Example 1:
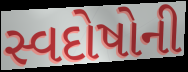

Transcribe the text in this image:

સ્વદોષોની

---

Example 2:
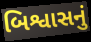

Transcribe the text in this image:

બિશ્વાસનું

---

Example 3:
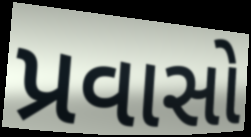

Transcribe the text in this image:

પ્રવાસો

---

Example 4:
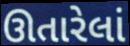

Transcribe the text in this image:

ઊતારેલાં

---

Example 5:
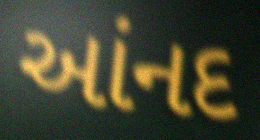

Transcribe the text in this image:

આંનદ